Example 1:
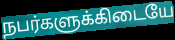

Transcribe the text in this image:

நபர்களுக்கிடையே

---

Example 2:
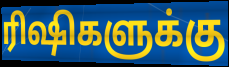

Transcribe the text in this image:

ரிஷிகளுக்கு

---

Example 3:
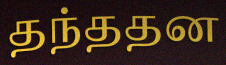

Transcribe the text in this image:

தந்ததன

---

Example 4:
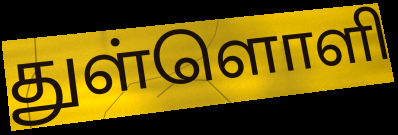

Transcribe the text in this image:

துள்ளொளி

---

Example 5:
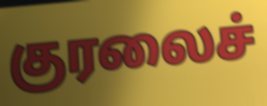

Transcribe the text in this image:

குரலைச்